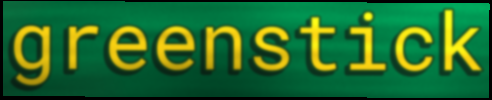
greenstick